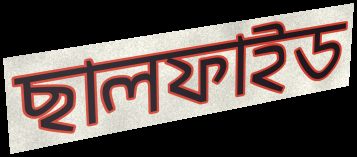
ছালফাইড